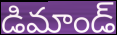
డిమాండ్